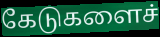
கேடுகளைச்